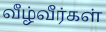
வீழ்வீர்கள்